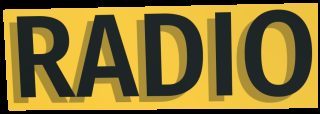
RADIO